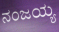
ನಂಜಯ್ಯ